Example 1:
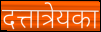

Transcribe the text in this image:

दत्तात्रेयका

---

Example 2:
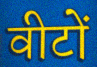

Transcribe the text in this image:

वीटों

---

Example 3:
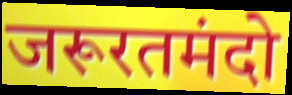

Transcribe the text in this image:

जरूरतमंदो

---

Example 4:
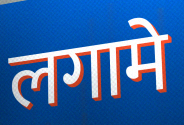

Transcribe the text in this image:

लगामे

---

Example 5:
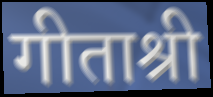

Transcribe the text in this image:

गीताश्री